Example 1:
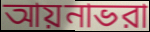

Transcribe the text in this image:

আয়নাভরা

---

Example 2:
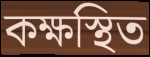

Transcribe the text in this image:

কক্ষস্থিত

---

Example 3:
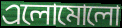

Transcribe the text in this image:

এলোমোলো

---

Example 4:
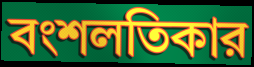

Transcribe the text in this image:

বংশলতিকার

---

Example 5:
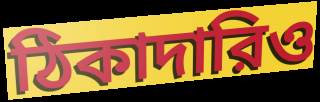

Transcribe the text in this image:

ঠিকাদারিও